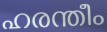
ഹരന്തീം